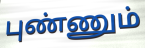
புண்ணும்